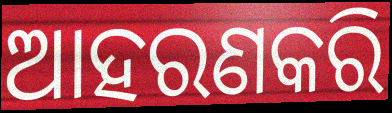
ଆହରଣକରି